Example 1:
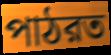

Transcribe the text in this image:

পাঠরত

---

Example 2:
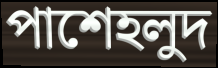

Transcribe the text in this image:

পাশেহলুদ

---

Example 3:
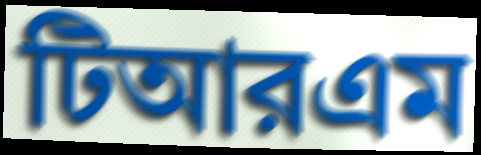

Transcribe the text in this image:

টিআরএম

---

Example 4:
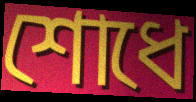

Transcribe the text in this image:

শোধে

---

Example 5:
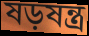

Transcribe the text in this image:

ষড়ষন্ত্র